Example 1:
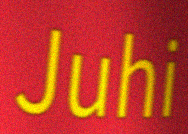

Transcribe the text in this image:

Juhi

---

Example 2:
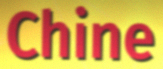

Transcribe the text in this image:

Chine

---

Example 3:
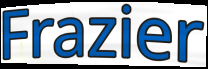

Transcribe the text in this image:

Frazier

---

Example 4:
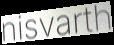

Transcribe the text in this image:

nisvarth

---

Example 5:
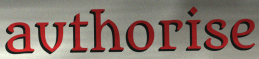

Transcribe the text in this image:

authorise